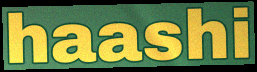
haashi